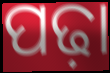
ପଢ଼ା